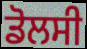
ਡੋਲਸੀ